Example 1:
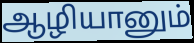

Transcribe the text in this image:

ஆழியானும்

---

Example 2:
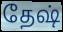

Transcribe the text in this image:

தேஷ்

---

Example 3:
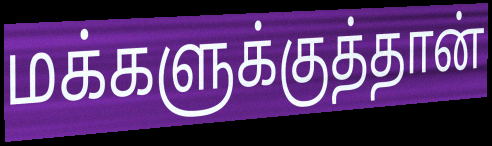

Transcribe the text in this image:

மக்களுக்குத்தான்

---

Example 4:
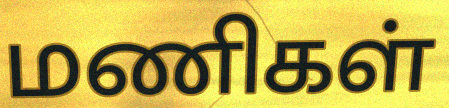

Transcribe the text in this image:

மணிகள்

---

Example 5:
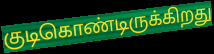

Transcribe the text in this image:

குடிகொண்டிருக்கிறது